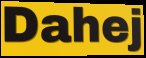
Dahej